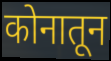
कोनातून